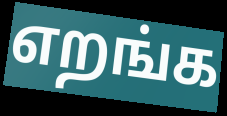
எறங்க